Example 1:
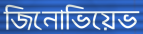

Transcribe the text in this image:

জিনোভিয়েভ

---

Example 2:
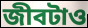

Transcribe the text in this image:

জীবটাও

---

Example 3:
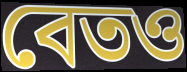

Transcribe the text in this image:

বেতও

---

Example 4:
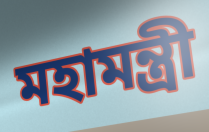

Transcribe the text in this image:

মহামন্ত্রী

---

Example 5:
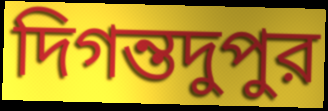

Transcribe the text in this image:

দিগন্তদুপুর